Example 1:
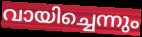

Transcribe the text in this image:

വായിച്ചെന്നും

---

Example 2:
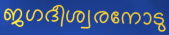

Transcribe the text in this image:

ജഗദീശ്വരനോടു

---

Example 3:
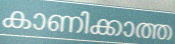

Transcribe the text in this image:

കാണിക്കാത്ത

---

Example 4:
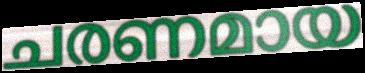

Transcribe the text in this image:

ചരണമായ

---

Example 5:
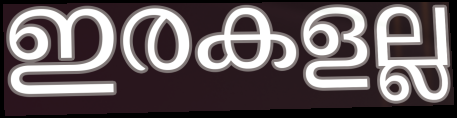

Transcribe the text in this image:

ഇരകളല്ല